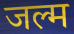
जल्म